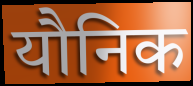
यौनिक